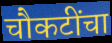
चौकटींचा